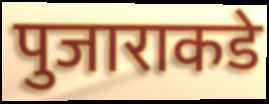
पुजाराकडे